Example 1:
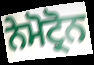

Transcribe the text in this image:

ਨੇਮੋਟ੍ਰੋਨ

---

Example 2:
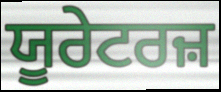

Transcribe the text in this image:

ਯੂਰੇਟਰਜ਼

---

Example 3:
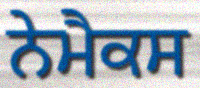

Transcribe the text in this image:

ਨੇਮੈਕਸ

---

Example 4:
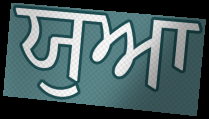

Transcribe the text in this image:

ਯੁਆ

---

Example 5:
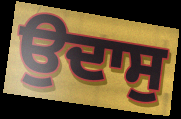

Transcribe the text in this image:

ਉਦਾਸੁ